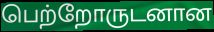
பெற்றோருடனான